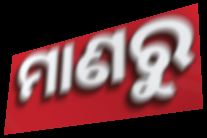
ମାଣରୁ